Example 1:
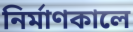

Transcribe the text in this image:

নির্মাণকালে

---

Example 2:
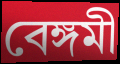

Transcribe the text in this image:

বেঙ্গমী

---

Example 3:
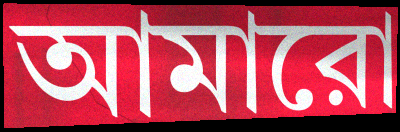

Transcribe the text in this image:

আমারো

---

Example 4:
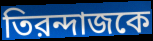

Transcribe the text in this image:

তিরন্দাজকে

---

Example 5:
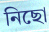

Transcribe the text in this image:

নিছো